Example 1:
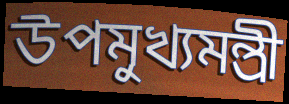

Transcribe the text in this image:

উপমুখ্যমন্ত্রী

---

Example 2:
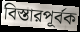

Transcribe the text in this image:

বিস্তারপূর্বক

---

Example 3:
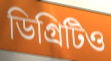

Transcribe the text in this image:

ডিগ্রিটিও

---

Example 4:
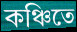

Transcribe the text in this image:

কঞ্চিতে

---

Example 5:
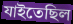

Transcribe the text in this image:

যাইতেছিল